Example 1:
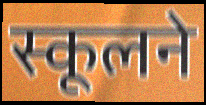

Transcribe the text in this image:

स्कूलने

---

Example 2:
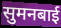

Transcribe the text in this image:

सुमनबाई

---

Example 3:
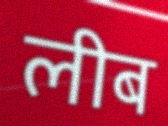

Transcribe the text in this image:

लीब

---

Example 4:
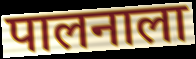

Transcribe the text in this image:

पालनाला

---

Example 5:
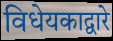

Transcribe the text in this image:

विधेयकाद्वारे